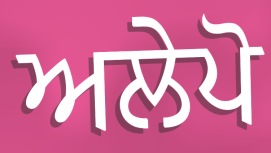
ਅਲੇਪੋ